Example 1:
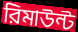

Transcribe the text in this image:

রিমাউন্ট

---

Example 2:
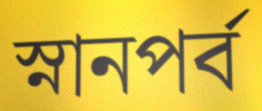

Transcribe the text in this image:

স্নানপর্ব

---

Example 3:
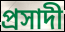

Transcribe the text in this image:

প্রসাদী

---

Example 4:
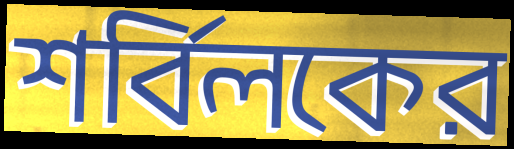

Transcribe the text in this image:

শর্বিলকের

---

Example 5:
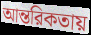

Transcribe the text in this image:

আন্তরিকতায়